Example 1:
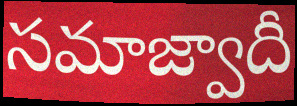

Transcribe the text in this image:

సమాజ్వాదీ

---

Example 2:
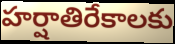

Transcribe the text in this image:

హర్షాతిరేకాలకు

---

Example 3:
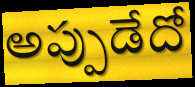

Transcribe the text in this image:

అప్పుడేదో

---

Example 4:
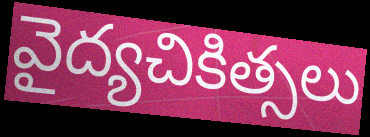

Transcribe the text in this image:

వైద్యచికిత్సలు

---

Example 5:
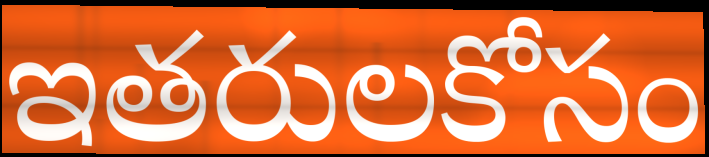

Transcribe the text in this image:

ఇతరులకోసం